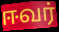
ஈவர்